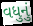
વધુનું